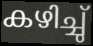
കഴിച്ചു്